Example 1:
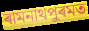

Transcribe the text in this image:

ৰামনাথপুৰমত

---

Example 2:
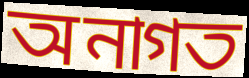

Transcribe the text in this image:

অনাগত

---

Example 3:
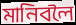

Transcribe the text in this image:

মানিবলৈ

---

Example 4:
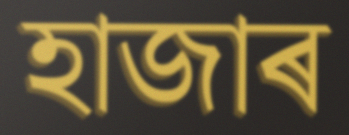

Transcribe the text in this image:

হাজাৰ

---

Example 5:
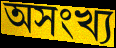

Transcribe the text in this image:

অসংখ্য